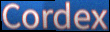
Cordex